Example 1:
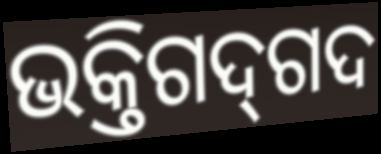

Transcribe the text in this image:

ଭକ୍ତିଗଦ୍‌ଗଦ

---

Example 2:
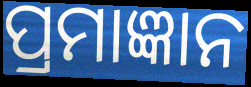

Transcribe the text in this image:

ପ୍ରମାଜ୍ଞାନ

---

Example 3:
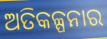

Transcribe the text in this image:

ଅତିକଳ୍ପନାର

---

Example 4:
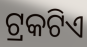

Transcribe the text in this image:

ଟ୍ରକଟିଏ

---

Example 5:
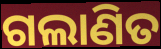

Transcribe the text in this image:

ଗଲାଣିତ